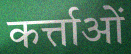
कर्त्ताओं